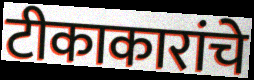
टीकाकारांचे